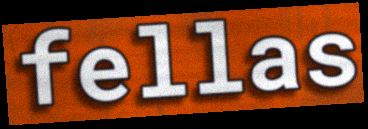
fellas